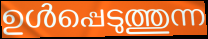
ഉൾപ്പെടുത്തുന്ന